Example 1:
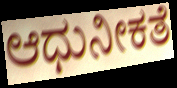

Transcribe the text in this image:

ಆಧುನೀಕತೆ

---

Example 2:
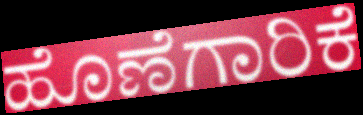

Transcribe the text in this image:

ಹೊಣೆಗಾರಿಕೆ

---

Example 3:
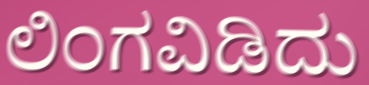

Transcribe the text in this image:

ಲಿಂಗವಿಡಿದು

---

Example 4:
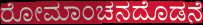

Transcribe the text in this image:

ರೋಮಾಂಚನದೊಡನೆ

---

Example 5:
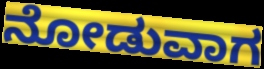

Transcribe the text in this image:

ನೋಡುವಾಗ